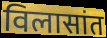
विलासांत